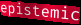
epistemic